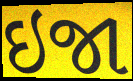
ઇજા